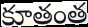
కూతంత